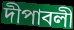
দীপাবলী